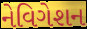
નેવિગેશન